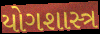
યોગશાસ્‍ત્ર